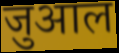
जुआल